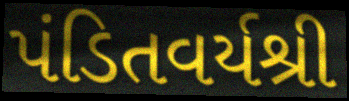
પંડિતવર્યશ્રી